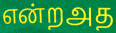
என்றஅத